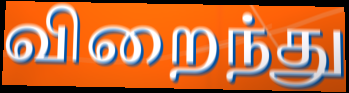
விறைந்து